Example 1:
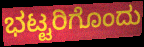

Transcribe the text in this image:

ಭಟ್ಟರಿಗೊಂದು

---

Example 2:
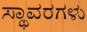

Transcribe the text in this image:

ಸ್ಥಾವರಗಳು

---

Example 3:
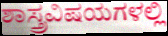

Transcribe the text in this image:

ಶಾಸ್ತ್ರವಿಷಯಗಳಲ್ಲಿ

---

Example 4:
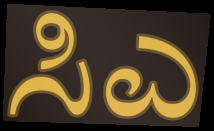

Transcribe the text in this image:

ಸಿಎ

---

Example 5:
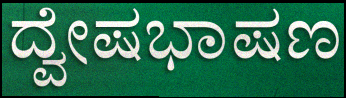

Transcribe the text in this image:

ದ್ವೇಷಭಾಷಣ